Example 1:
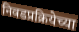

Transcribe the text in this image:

निवडप्रक्रियेच्या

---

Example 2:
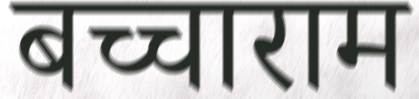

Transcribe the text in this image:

बच्चाराम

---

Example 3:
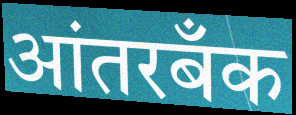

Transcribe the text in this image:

आंतरबँक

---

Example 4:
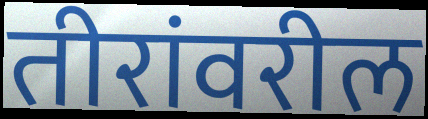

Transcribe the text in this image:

तीरांवरील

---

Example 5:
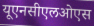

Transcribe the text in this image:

यूएनसीएलओएस